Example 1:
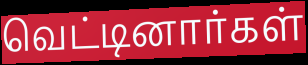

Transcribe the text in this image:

வெட்டினார்கள்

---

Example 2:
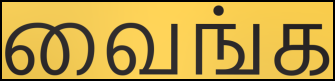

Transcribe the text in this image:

வைங்க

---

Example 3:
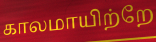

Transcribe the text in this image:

காலமாயிற்றே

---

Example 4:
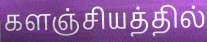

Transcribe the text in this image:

களஞ்சியத்தில்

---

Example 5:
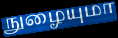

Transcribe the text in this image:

நுழையுமா